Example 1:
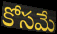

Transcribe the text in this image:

కోసమే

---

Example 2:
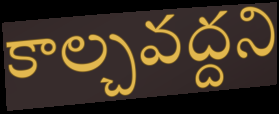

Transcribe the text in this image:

కాల్చవద్దని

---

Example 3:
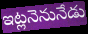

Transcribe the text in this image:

ఇట్లనెనునేడు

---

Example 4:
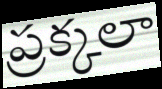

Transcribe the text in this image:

ప్రక్కలా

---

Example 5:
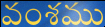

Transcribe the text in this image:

వంశము